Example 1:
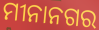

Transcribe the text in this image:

ମୀନାନଗର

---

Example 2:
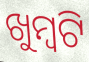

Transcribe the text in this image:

ଖୁମ୍ବଟି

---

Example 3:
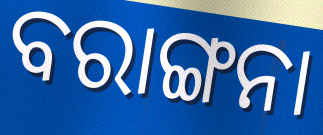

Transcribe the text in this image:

ବରାଙ୍ଗନା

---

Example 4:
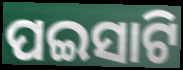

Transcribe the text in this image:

ପଇସାଟି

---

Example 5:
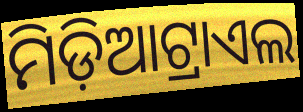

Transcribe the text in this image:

ମିଡ଼ିଆଟ୍ରାଏଲ